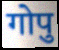
गोपु